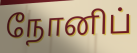
நோனிப்